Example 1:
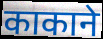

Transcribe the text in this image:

काकाने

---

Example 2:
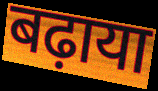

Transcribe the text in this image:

बढ़ाया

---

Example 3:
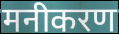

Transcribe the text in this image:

मनीकरण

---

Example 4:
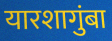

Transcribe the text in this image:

यारशागुंबा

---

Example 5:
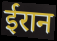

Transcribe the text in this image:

ईरान